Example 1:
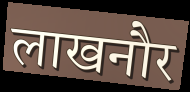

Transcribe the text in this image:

लाखनौर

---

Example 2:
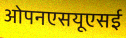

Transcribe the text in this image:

ओपनएसयूएसई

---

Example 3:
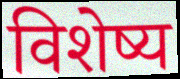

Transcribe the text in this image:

विशेष्य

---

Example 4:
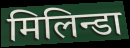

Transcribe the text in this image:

मिलिन्डा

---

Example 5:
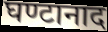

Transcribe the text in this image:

घण्टानाद